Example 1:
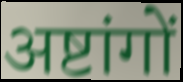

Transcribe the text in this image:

अष्टांगों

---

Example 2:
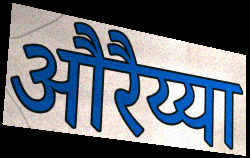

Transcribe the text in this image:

औरैय्या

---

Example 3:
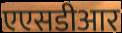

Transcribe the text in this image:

एएसडीआर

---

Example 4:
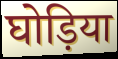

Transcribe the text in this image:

घोड़िया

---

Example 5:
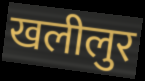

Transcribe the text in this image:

खलीलुर